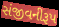
સંજીવનીરૂપ